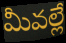
మీవల్లే